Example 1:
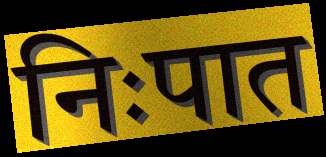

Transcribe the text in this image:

निःपात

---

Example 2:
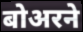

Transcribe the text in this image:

बोअरने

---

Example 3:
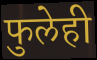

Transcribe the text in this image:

फुलेही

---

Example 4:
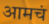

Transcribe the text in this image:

आमचं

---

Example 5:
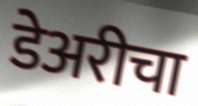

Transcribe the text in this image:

डेअरीचा